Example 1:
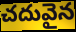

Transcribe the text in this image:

చదువైన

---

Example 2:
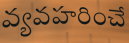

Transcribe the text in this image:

వ్యవహరించే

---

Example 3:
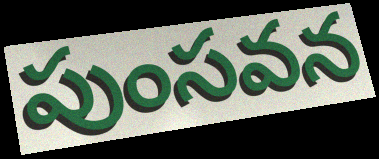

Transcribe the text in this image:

పుంసవన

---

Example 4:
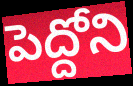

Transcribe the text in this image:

పెద్దోని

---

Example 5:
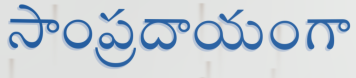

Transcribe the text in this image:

సాంప్రదాయంగా